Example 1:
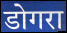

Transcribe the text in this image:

डोगरा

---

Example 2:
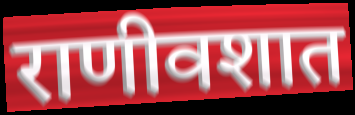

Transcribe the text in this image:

राणीवशात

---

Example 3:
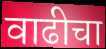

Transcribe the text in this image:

वाढीचा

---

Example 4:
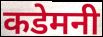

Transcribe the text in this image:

कडेमनी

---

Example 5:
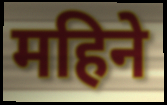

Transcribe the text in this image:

महिने